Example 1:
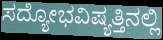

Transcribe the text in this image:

ಸದ್ಯೋಭವಿಷ್ಯತ್ತಿನಲ್ಲಿ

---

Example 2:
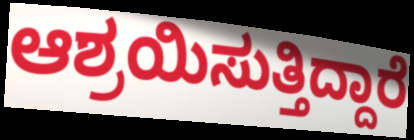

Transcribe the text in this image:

ಆಶ್ರಯಿಸುತ್ತಿದ್ದಾರೆ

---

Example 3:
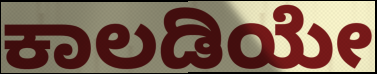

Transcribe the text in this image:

ಕಾಲಡಿಯೇ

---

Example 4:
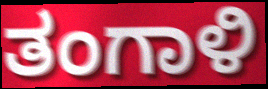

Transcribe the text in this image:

ತಂಗಾಳಿ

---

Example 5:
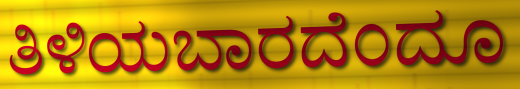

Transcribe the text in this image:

ತಿಳಿಯಬಾರದೆಂದೂ